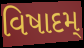
વિષાદમ્